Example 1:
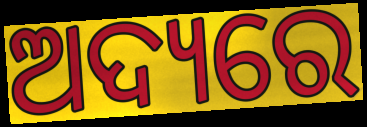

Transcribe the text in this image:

ଅଦ୍ୟରେ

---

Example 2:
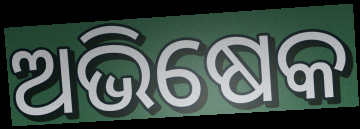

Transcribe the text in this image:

ଅଭିଷେକ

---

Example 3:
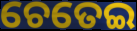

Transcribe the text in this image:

ଚେତେଇ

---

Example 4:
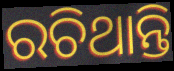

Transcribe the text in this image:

ରଚିଥାନ୍ତି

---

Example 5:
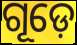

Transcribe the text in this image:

ଗୂଡ଼େ